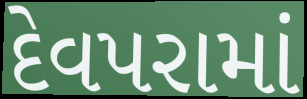
દેવપરામાં